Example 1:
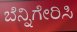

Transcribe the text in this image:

ಬೆನ್ನಿಗೇರಿಸಿ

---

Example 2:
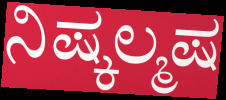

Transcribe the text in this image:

ನಿಷ್ಕಲ್ಮಷ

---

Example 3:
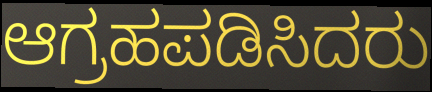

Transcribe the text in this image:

ಆಗ್ರಹಪಡಿಸಿದರು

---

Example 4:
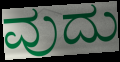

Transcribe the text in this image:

ವುದು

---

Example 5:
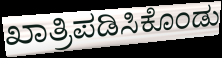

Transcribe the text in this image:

ಖಾತ್ರಿಪಡಿಸಿಕೊಂಡು